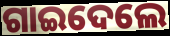
ଗାଇଦେଲେ